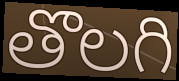
తొలగి